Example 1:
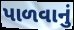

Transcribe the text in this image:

પાળવાનું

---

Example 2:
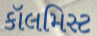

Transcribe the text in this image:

કૉલમિસ્ટ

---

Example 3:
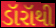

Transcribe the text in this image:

ડૉરૉથી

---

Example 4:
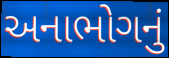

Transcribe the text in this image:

અનાભોગનું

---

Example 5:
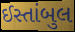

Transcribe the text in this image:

ઈસ્તાંબુલ